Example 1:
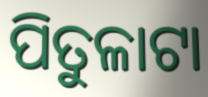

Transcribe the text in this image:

ପିତୁଳାଟା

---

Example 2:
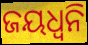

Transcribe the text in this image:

ଜୟଧ୍ଵନି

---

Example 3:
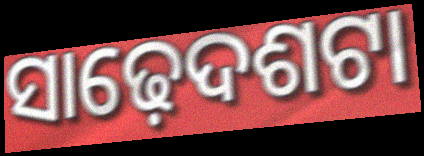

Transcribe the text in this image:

ସାଢ଼େଦଶଟା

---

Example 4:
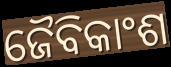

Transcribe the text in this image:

ଜୈବିକାଂଶ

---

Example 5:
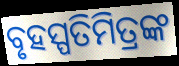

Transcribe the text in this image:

ବୃହସ୍ପତିମିତ୍ରଙ୍କ